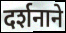
दर्शनाने